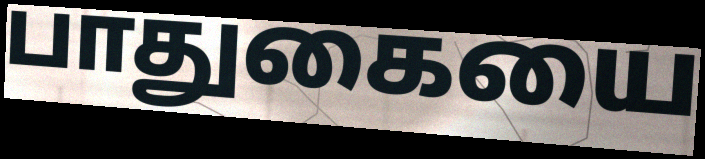
பாதுகையை